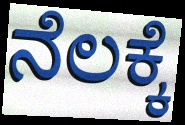
ನೆಲಕ್ಕೆ